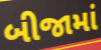
બીજામાં